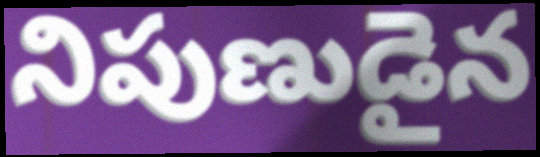
నిపుణుడైన